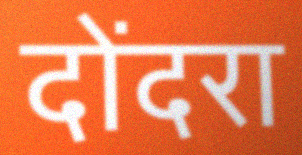
दोंदरा